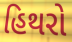
હિથરો